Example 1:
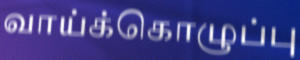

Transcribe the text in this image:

வாய்க்கொழுப்பு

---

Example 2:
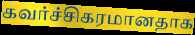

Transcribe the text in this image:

கவர்ச்சிகரமானதாக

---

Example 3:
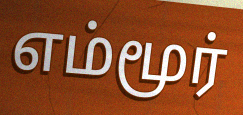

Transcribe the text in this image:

எம்மூர்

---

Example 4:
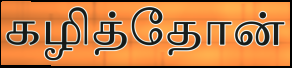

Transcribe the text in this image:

கழித்தோன்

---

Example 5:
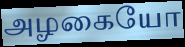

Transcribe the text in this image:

அழகையோ